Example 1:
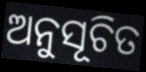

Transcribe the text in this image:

ଅନୁସୂଚିତ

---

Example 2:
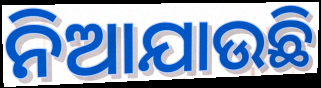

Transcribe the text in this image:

ନିଆଯାଉଛି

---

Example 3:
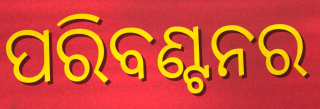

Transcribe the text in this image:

ପରିବଣ୍ଟନର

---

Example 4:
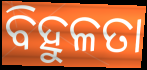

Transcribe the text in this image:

ବିହୁଳତା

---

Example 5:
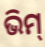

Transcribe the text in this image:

ଭିମ୍